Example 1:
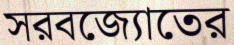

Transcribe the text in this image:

সরবজ্যোতের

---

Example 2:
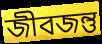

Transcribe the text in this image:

জীবজন্তু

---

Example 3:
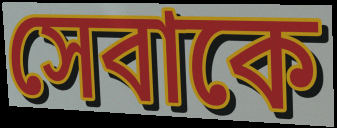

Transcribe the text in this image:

সেবাকে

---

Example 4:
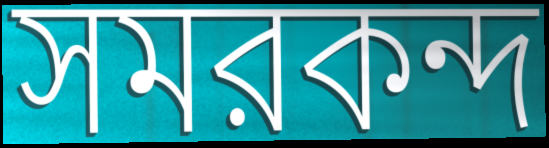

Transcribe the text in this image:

সমরকন্দ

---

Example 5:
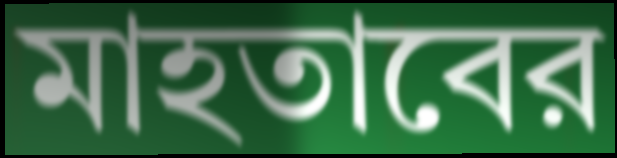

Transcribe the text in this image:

মাহতাবের